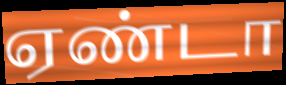
ஏண்டா